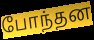
போந்தன